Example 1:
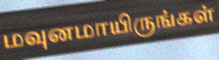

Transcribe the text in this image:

மவுனமாயிருங்கள்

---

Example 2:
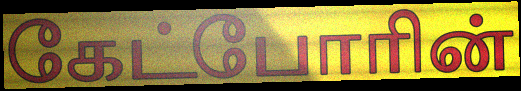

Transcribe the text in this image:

கேட்போரின்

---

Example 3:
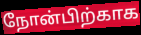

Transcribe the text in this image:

நோன்பிற்காக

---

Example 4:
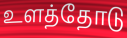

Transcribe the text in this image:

உளத்தோடு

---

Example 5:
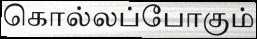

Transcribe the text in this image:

கொல்லப்போகும்